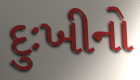
દુઃખીનો